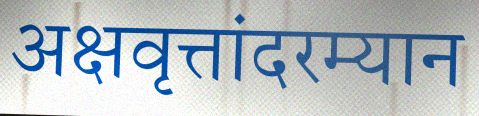
अक्षवृत्तांदरम्यान